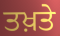
ਤਖ਼ਤੇ